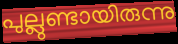
പുല്ലുണ്ടായിരുന്നു